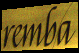
remba